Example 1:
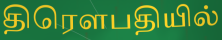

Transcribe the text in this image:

திரௌபதியில்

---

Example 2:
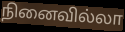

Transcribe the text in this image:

நினைவில்லா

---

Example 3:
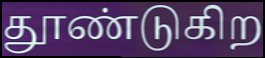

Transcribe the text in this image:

தூண்டுகிற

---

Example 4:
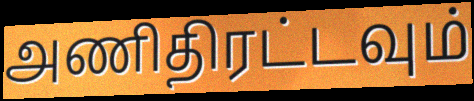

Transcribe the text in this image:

அணிதிரட்டவும்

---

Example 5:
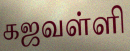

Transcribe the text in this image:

கஜவள்ளி